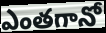
ఎంతగానో